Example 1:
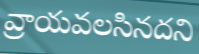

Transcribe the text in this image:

వ్రాయవలసినదని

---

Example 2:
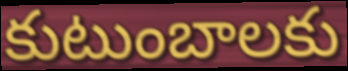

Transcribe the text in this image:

కుటుంబాలకు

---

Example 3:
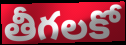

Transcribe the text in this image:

తీగలకో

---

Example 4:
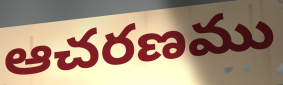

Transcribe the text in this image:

ఆచరణము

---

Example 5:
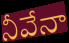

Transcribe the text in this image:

నీవేనా